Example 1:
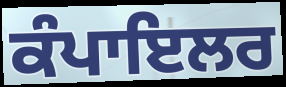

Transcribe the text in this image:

ਕੰਪਾਇਲਰ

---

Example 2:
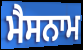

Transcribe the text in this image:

ਮੈਸਨਾਮ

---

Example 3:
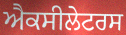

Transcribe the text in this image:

ਐਕਸੀਲੇਟਰਸ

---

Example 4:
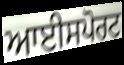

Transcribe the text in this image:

ਆਈਸਪੋਰਟ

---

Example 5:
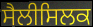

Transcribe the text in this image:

ਸੈਲੀਸਿਲਕ